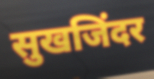
सुखजिंदर